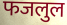
फजलुल